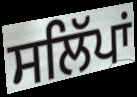
ਸਲਿੱਪਾਂ